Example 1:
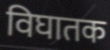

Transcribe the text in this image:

विघातक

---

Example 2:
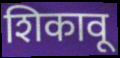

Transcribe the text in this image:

शिकावू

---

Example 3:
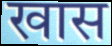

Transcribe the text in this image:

खास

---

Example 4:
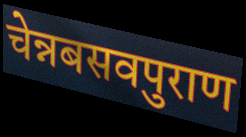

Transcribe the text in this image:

चेन्नबसवपुराण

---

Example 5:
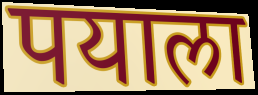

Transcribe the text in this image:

पयाला